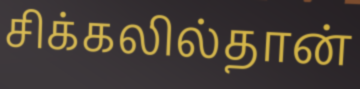
சிக்கலில்தான்